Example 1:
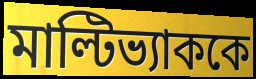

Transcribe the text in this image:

মাল্টিভ্যাককে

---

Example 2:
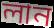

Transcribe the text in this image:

লান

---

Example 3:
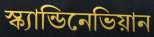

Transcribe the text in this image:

স্ক্যান্ডিনেভিয়ান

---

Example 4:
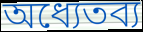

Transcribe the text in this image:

অধ্যেতব্য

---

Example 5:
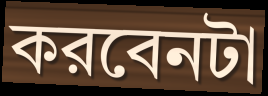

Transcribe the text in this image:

করবেনটা